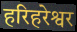
हरिहरेश्वर